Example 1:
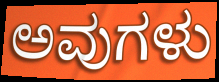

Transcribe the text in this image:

ಅವುಗಳು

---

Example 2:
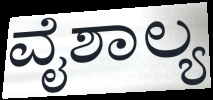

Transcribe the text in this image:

ವೈಶಾಲ್ಯ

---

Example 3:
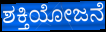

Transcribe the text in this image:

ಶಕ್ತಿಯೋಜನೆ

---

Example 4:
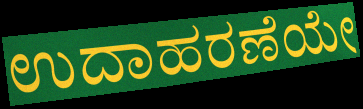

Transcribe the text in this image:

ಉದಾಹರಣೆಯೇ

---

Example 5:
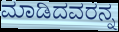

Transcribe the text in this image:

ಮಾಡಿದವರನ್ನ